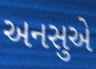
અનસુએ